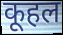
कूहल